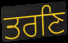
ਤਰਣਿ